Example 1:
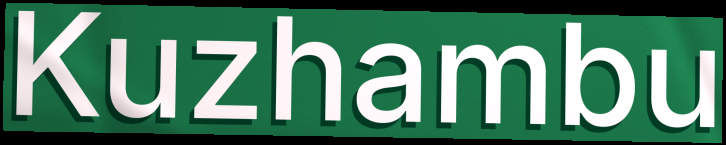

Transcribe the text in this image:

Kuzhambu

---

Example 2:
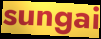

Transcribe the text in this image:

sungai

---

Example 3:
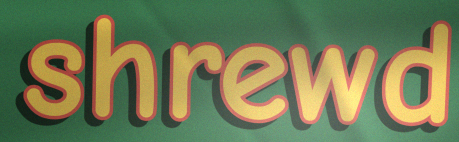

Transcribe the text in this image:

shrewd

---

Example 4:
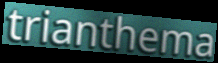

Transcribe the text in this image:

trianthema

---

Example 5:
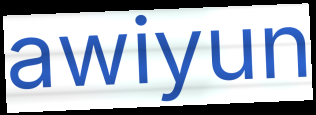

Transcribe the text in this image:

awiyun